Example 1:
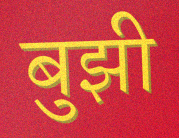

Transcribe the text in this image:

बुझी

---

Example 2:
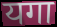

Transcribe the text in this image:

यगा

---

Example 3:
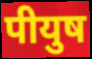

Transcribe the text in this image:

पीयुष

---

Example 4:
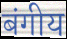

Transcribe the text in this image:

बंगीय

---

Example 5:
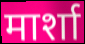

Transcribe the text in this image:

मार्शा